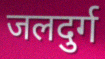
जलदुर्ग